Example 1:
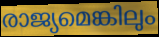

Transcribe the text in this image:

രാജ്യമെങ്കിലും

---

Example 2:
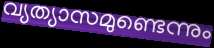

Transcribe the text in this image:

വ്യത്യാസമുണ്ടെന്നും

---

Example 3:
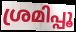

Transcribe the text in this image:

ശ്രമിപ്പൂ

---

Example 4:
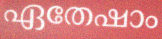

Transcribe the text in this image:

ഏതേഷാം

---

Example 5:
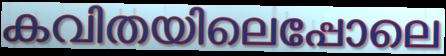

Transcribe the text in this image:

കവിതയിലെപ്പോലെ